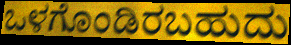
ಒಳಗೊಂಡಿರಬಹುದು